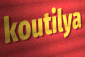
koutilya